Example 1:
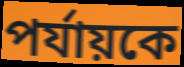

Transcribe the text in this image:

পর্যায়কে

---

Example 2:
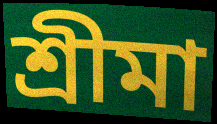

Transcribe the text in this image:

শ্রীমা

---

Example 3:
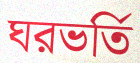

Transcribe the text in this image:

ঘরভর্তি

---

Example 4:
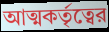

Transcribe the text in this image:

আত্মকর্তৃত্বের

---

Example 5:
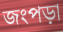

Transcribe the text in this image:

জংপড়া